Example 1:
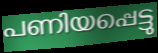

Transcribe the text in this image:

പണിയപ്പെട്ടു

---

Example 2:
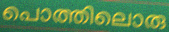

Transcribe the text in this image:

പൊത്തിലൊരു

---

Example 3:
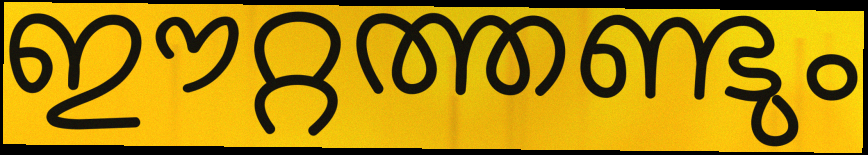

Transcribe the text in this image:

ഈറ്റത്തണ്ടും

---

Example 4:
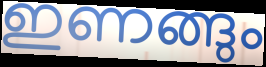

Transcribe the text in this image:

ഇണങ്ങും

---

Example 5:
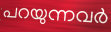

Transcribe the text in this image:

പറയുന്നവർ